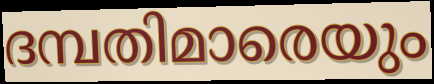
ദമ്പതിമാരെയും